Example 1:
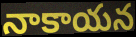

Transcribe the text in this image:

నాకాయన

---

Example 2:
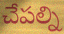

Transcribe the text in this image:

చేపల్ని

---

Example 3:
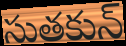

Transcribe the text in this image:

సుతకున్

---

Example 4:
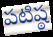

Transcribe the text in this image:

పటిష్ఠ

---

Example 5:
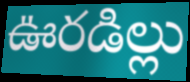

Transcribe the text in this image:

ఊరడిల్లు